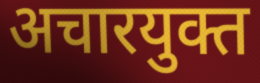
अचारयुक्त